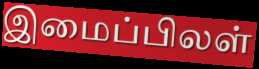
இமைப்பிலள்